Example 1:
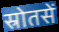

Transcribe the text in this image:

स्रोतसें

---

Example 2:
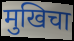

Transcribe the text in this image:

मुखिचा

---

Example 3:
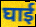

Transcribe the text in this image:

घाई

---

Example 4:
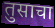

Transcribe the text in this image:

तुसाचा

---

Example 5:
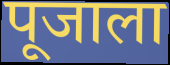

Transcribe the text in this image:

पूजाला